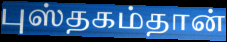
புஸ்தகம்தான்